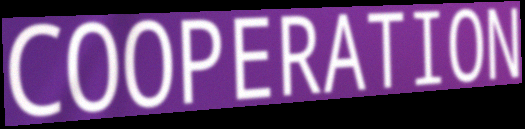
COOPERATION